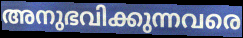
അനുഭവിക്കുന്നവരെ